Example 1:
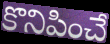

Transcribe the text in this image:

కొనిపించే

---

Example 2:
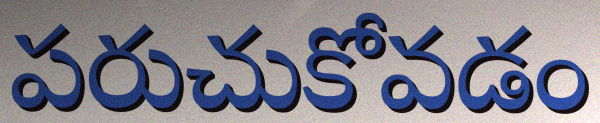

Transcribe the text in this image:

పరుచుకోవడం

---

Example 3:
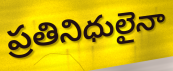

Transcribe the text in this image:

ప్రతినిధులైనా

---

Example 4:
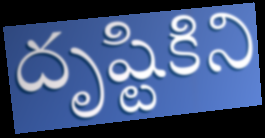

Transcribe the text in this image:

దృష్టికిని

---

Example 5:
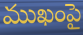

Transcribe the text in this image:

ముఖంపై